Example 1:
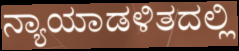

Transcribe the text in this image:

ನ್ಯಾಯಾಡಳಿತದಲ್ಲಿ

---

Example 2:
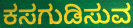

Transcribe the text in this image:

ಕಸಗುಡಿಸುವ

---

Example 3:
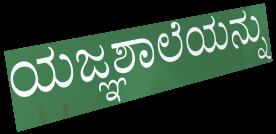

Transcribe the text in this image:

ಯಜ್ಞಶಾಲೆಯನ್ನು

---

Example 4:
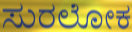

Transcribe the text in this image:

ಸುರಲೋಕ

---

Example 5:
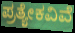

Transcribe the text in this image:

ಪ್ರತ್ಯೇಕವಿವೆ